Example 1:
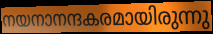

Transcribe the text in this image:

നയനാനന്ദകരമായിരുന്നു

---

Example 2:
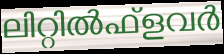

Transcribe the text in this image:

ലിറ്റിൽഫ്ളവർ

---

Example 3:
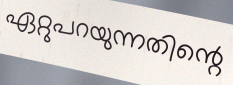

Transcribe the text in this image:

ഏറ്റുപറയുന്നതിന്റെ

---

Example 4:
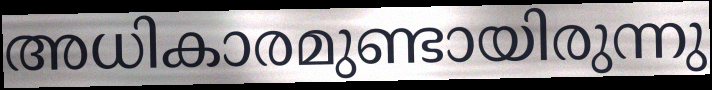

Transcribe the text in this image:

അധികാരമുണ്ടായിരുന്നു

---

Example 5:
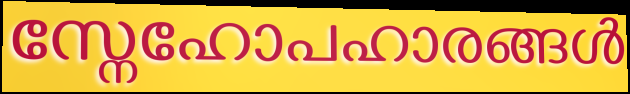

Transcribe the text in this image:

സ്നേഹോപഹാരങ്ങൾ